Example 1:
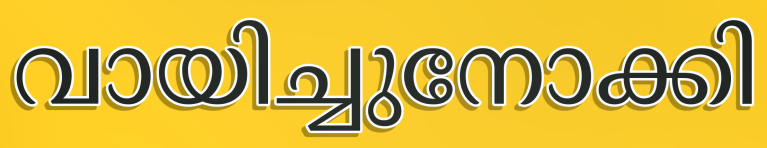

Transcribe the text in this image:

വായിച്ചുനോക്കി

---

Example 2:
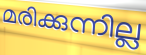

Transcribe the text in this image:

മരിക്കുന്നില്ല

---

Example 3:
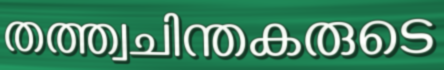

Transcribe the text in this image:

തത്ത്വചിന്തകരുടെ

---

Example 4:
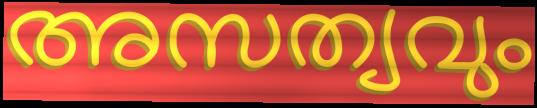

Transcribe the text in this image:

അസത്യവും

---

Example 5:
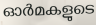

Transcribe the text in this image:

ഓർമകളുടെ